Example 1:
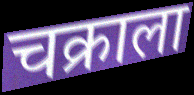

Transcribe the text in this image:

चक्राला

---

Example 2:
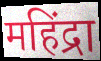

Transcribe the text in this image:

महिंद्रा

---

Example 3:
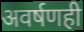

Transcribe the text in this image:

अवर्षणही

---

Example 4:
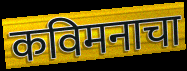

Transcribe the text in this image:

कविमनाचा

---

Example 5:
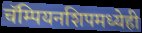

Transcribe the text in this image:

चॅम्पियनशिपमध्येही